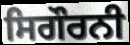
ਸਿਗੌਰਨੀ